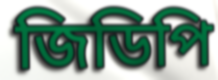
জিডিপি